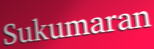
Sukumaran